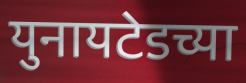
युनायटेडच्या